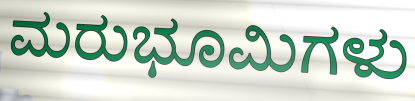
ಮರುಭೂಮಿಗಳು